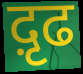
द़ृढ